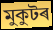
মুকুটৰ